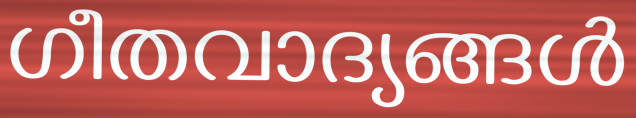
ഗീതവാദ്യങ്ങൾ